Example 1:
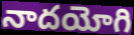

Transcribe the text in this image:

నాదయోగి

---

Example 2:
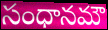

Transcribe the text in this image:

సంధానమౌ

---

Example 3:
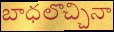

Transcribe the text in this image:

బాధలొచ్చినా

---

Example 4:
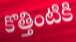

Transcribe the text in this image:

కొత్తింటికి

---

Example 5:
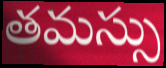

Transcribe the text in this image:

తమస్సు